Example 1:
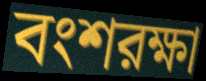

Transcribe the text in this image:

বংশরক্ষা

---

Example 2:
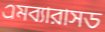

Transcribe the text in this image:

এমব্যারাসড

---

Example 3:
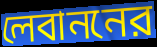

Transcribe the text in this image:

লেবাননের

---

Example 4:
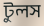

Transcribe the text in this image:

টুলস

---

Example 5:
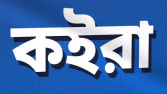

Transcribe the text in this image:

কইরা